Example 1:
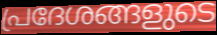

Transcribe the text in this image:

പ്രദേശങ്ങളുടെ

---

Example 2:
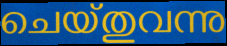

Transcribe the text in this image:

ചെയ്തുവന്നു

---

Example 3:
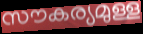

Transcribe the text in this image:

സൗകര്യമുള്ള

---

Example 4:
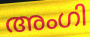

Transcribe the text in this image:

അംഗി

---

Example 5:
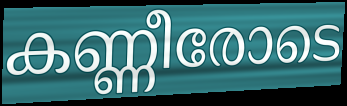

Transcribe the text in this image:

കണ്ണീരോടെ